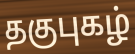
தகுபுகழ்